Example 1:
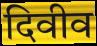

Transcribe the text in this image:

दिवीव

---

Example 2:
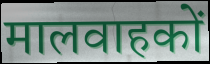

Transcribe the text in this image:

मालवाहकों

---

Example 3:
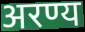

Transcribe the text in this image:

अरण्य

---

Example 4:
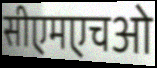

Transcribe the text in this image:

सीएमएचओ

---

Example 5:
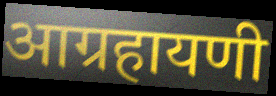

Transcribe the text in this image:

आग्रहायणी